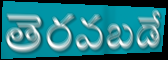
తెరవబడే